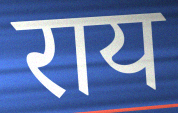
राय